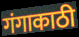
गंगाकाठी